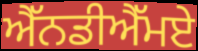
ਐੱਨਡੀਐੱਮਏ